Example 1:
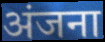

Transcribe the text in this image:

अंजना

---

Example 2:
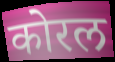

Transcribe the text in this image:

कोरल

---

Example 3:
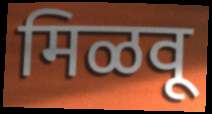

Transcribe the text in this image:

मिळवू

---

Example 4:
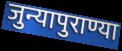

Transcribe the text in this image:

जुन्यापुराण्या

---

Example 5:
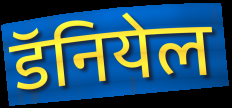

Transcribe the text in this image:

डॅनियेल